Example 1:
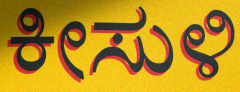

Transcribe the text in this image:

ಕೀಸುಳಿ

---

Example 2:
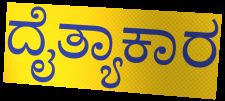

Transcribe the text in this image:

ದೈತ್ಯಾಕಾರ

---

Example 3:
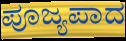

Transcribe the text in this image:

ಪೂಜ್ಯಪಾದ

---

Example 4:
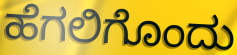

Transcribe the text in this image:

ಹೆಗಲಿಗೊಂದು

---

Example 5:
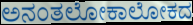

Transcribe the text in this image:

ಅನಂತಲೋಕಾಲೋಕದ